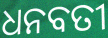
ଧନବତୀ